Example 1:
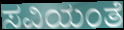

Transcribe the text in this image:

ಸವಿಯಂತೆ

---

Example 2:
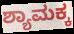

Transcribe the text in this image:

ಶ್ಯಾಮಕ್ಕ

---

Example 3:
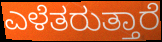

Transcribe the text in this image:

ಎಳೆತರುತ್ತಾರೆ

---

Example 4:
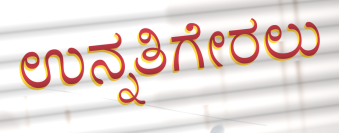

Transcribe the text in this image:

ಉನ್ನತಿಗೇರಲು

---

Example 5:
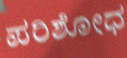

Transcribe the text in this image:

ಪರಿಶೋಧ